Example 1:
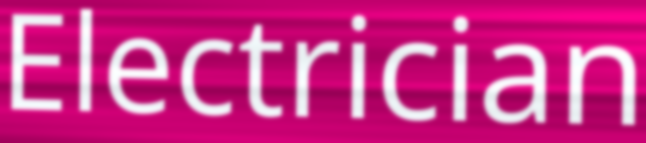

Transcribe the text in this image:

Electrician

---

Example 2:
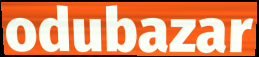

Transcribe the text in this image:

odubazar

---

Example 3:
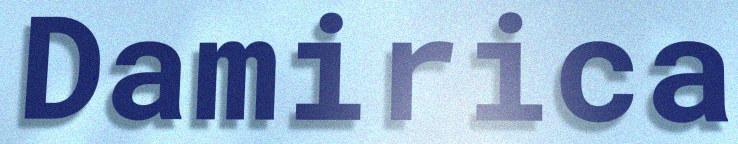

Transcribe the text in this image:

Damirica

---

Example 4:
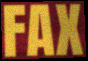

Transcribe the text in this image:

FAX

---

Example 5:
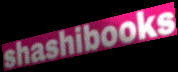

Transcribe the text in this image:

shashibooks